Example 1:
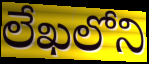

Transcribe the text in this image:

లేఖలోని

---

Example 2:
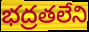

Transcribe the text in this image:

భద్రతలేని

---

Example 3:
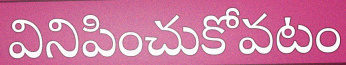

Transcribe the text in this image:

వినిపించుకోవటం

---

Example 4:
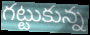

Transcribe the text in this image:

గట్టుకున్న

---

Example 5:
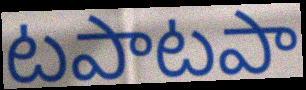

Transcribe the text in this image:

టపాటపా